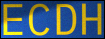
ECDH